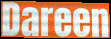
Dareen